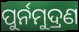
ପୁର୍ନମୁଦ୍ରଣ